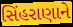
સિંહરાણાને